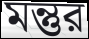
মন্তুর